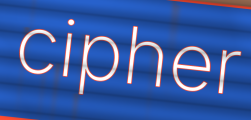
cipher